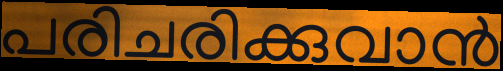
പരിചരിക്കുവാൻ